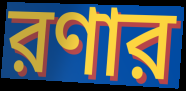
রণার